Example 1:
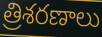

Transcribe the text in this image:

త్రిశరణాలు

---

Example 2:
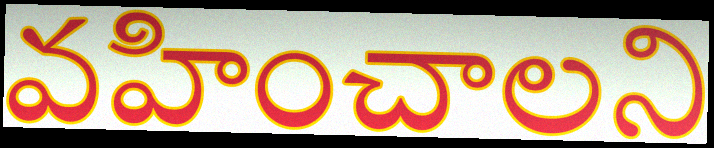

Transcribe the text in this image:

వహించాలని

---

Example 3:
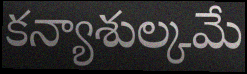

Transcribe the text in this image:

కన్యాశుల్కమే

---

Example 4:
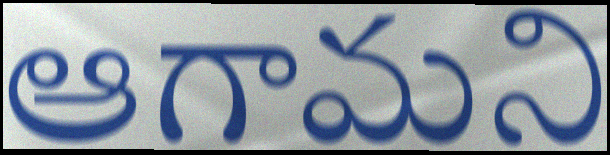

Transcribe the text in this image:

ఆగామని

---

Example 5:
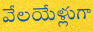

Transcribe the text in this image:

వేలయేళ్లుగా